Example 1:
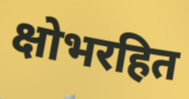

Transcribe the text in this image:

क्षोभरहित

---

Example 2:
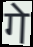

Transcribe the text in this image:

गे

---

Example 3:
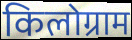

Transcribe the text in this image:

किलोग्राम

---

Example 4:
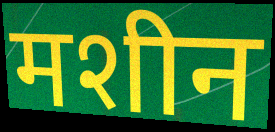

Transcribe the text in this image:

मशीन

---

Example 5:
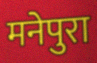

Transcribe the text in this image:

मनेपुरा